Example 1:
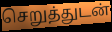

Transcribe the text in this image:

செறுத்துடன்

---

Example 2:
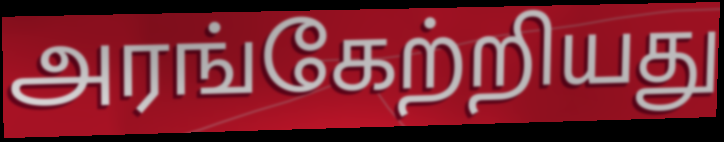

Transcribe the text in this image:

அரங்கேற்றியது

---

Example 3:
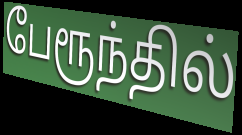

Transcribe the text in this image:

பேரூந்தில்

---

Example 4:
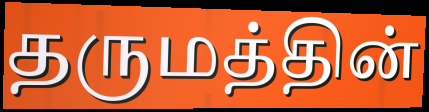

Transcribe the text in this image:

தருமத்தின்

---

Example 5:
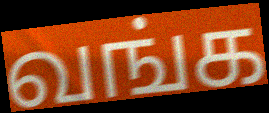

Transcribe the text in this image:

வங்க